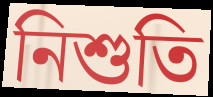
নিশুতি